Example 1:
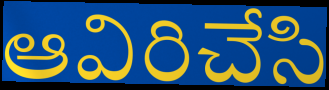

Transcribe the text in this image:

ఆవిరిచేసి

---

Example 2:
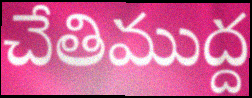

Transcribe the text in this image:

చేతిముద్ద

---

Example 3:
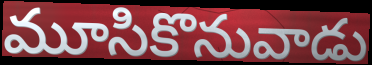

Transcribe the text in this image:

మూసికొనువాడు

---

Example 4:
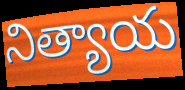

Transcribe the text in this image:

నిత్యాయ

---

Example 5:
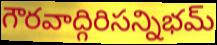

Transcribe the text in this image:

గౌరవాద్గిరిసన్నిభమ్